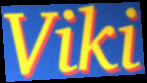
Viki